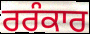
ਰਰੰਕਾਰ